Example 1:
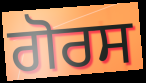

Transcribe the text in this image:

ਗੋਰਸ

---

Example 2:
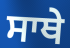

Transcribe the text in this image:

ਸਾਥੇ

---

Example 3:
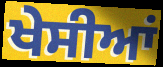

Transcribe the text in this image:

ਖੇਸੀਆਂ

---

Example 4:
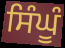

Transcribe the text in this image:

ਸਿੰਘੂੰ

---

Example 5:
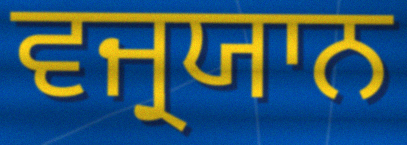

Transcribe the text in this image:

ਵਜ੍ਰਯਾਨ